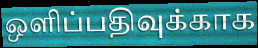
ஒளிப்பதிவுக்காக